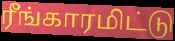
ரீங்காரமிட்டு